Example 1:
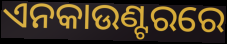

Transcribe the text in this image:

ଏନକାଉଣ୍ଟରରେ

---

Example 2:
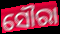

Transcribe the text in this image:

ସୌରା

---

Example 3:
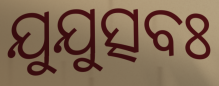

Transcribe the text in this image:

ଯୁଯୁତ୍ସବଃ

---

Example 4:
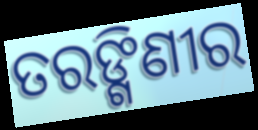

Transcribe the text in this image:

ତରଙ୍ଗିଣୀର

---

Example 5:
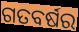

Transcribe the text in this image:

ଗତବର୍ଷର